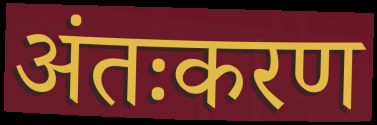
अंतःकरण